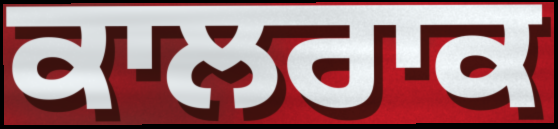
ਕਾਲਰਾਕ